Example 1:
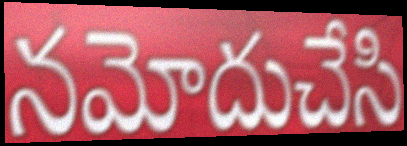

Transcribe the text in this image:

నమోదుచేసి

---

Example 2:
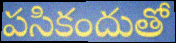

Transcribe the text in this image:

పసికందుతో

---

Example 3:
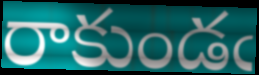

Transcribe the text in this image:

రాకుండఁ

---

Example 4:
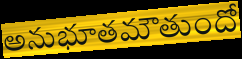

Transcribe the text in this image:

అనుభూతమౌతుందో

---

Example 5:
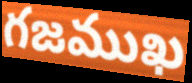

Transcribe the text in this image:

గజముఖ